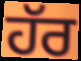
ਹੱਰ